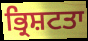
ਭ੍ਰਿਸ਼ਟਤਾ